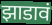
झाडावं